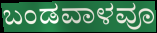
ಬಂಡವಾಳವೂ